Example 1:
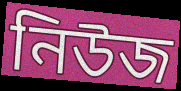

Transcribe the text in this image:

নিউজ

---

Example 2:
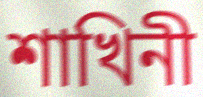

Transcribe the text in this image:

শাখিনী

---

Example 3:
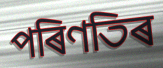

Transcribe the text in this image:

পৰিণতিৰ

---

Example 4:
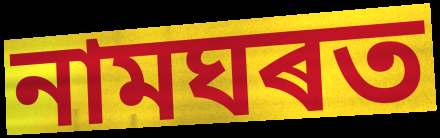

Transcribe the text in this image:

নামঘৰত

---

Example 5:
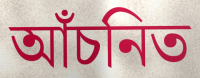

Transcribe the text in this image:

আঁচনিত